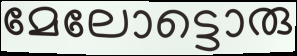
മേലോട്ടൊരു